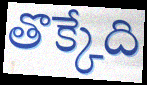
తొక్కేది